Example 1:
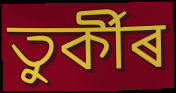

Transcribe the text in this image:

তুৰ্কীৰ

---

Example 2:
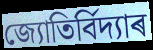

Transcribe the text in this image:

জ্যোতিৰ্বিদ্যাৰ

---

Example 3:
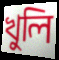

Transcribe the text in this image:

খুলি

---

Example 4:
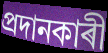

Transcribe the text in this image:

প্ৰদানকাৰী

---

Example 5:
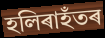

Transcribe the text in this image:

হলিৰাহঁতৰ